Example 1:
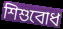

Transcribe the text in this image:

শিশুবোধ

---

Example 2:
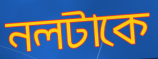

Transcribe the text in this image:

নলটাকে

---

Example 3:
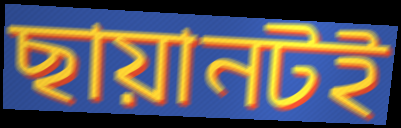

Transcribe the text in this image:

ছায়ানটই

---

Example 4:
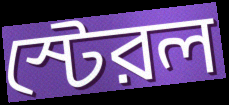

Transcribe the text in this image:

স্টেরল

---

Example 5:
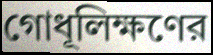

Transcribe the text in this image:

গোধূলিক্ষণের